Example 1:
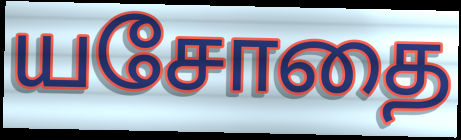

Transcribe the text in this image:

யசோதை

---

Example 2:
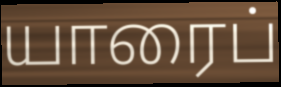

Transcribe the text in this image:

யாரைப்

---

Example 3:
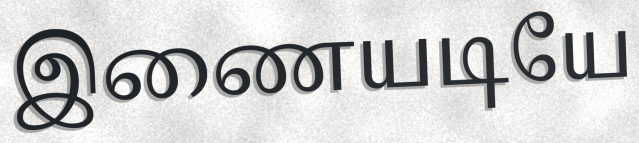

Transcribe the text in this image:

இணையடியே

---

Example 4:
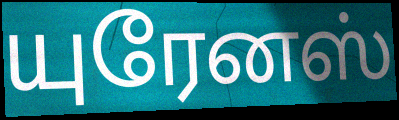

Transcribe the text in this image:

யுரேனஸ்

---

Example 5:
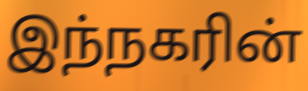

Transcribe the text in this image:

இந்நகரின்